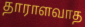
தாராளவாத